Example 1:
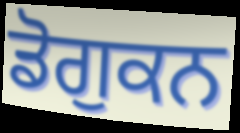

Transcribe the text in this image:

ਡੋਗੁਕਨ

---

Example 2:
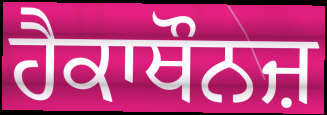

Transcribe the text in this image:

ਹੈਕਾਥੌਨਜ਼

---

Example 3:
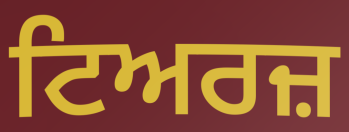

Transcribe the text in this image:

ਟਿਅਰਜ਼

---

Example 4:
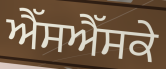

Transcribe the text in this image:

ਐੱਸਐੱਸਕੇ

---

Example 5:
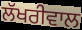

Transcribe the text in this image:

ਲੱਖਰੀਵਾਲ